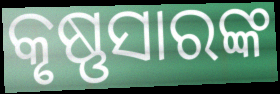
କୃଷ୍ଣସାରଙ୍କ